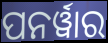
ପନର୍ୱାର